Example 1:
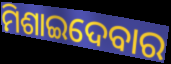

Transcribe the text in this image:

ମିଶାଇଦେବାର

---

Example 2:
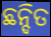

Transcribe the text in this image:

ଛନ୍ଦିତ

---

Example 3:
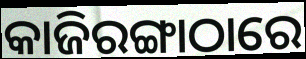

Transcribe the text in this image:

କାଜିରଙ୍ଗାଠାରେ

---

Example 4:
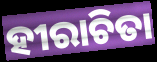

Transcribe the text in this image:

ହୀରାଚିତା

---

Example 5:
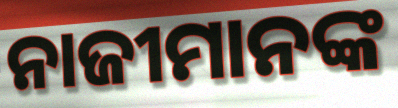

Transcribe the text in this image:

ନାଜୀମାନଙ୍କ